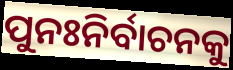
ପୁନଃନିର୍ବାଚନକୁ